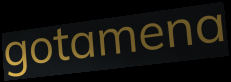
gotamena